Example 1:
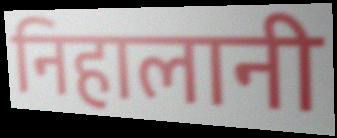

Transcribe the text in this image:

निहालानी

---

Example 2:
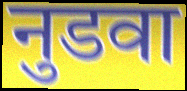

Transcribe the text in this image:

नुडवा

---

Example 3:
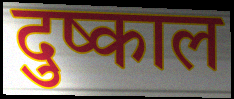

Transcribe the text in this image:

दुष्काल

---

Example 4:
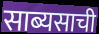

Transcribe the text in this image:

साब्यसाची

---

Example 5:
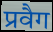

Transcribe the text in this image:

प्रवैग